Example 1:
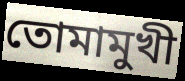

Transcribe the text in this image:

তোমামুখী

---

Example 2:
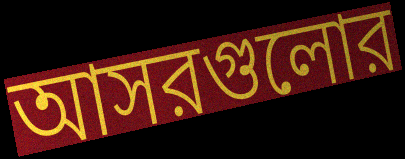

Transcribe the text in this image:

আসরগুলোর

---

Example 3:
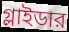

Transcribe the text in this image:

গ্লাইডার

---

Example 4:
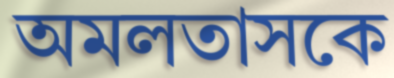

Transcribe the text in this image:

অমলতাসকে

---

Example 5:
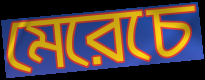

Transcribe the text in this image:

মেরেচে